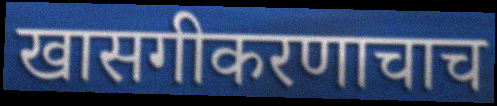
खासगीकरणाचाच